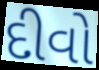
દીવો